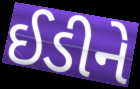
ઈડીને